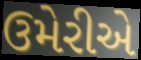
ઉમેરીએ